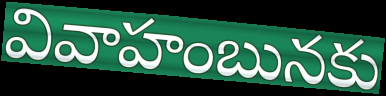
వివాహంబునకు